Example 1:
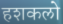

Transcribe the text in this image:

हशकलो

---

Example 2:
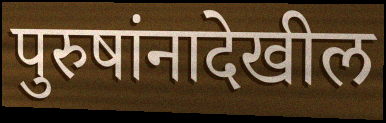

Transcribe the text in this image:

पुरुषांनादेखील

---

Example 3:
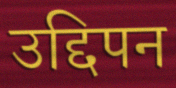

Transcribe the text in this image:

उद्दिपन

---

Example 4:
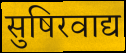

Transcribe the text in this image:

सुषिरवाद्य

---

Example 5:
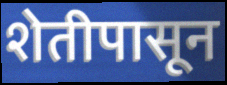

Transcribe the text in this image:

शेतीपासून